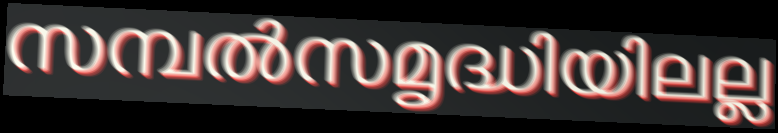
സമ്പൽസമൃദ്ധിയിലല്ല